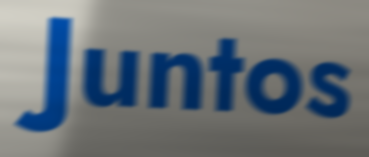
Juntos